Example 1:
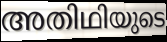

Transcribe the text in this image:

അതിഥിയുടെ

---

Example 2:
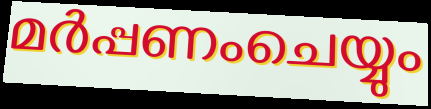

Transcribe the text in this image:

മർപ്പണംചെയ്യും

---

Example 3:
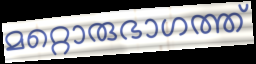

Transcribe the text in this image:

മറ്റൊരുഭാഗത്ത്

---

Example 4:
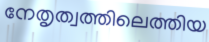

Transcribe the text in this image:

നേതൃത്വത്തിലെത്തിയ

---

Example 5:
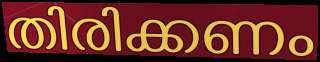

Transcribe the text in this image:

തിരിക്കണം